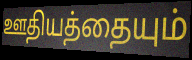
ஊதியத்தையும்